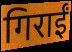
गिराईं